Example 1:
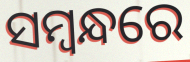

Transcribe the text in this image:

ସମ୍ବନ୍ଧରେ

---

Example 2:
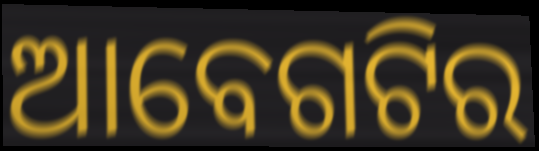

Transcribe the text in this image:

ଆବେଗଟିର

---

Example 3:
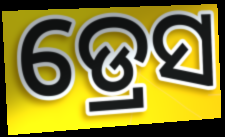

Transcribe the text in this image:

ଡ୍ରେସ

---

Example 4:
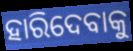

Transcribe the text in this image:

ହାରିଦେବାକୁ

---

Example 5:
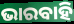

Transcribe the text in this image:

ଭାରବାହି